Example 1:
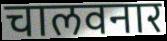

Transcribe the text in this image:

चालवनार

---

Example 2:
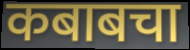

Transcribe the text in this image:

कबाबचा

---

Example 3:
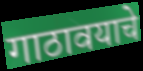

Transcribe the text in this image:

गाठावयाचे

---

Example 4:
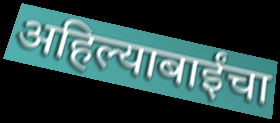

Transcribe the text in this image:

अहिल्याबाईंचा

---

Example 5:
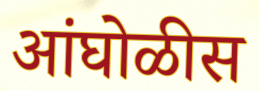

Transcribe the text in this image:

आंघोळीस